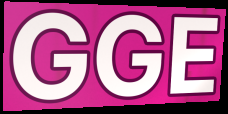
GGE